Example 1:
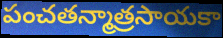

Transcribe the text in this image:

పంచతన్మాత్రసాయకా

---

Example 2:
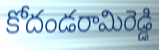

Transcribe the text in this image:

కోదండరామిరెడ్డి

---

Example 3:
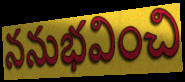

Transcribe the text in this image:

ననుభవించి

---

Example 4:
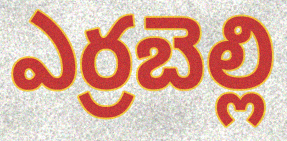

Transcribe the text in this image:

ఎర్రబెల్లి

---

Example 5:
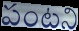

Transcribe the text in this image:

పంటని